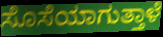
ಸೊಸೆಯಾಗುತ್ತಾಳೆ